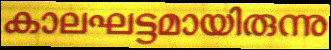
കാലഘട്ടമായിരുന്നു